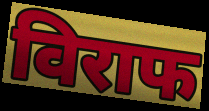
विराफ